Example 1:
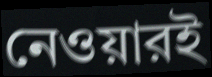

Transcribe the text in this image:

নেওয়ারই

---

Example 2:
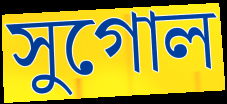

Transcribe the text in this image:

সুগোল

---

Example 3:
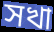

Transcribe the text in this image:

সখা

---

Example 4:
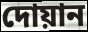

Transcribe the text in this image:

দোয়ান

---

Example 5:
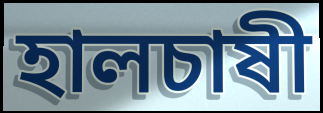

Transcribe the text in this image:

হালচাষী